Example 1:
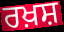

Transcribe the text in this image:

ਰਖ਼ਸ਼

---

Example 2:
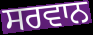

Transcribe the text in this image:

ਸਰਵਾਨ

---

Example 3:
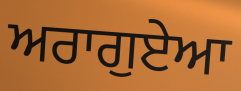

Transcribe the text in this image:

ਅਰਾਗੁਏਆ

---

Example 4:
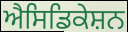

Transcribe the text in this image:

ਐਸਿਡਿਕੇਸ਼ਨ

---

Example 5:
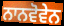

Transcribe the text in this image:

ਨਾਨਵੋਵੇਨ